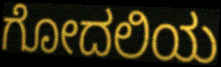
ಗೋದಲಿಯ